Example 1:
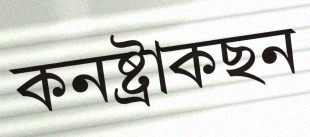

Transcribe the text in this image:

কনষ্ট্ৰাকছন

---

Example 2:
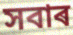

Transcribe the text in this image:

সবাৰ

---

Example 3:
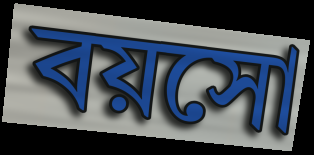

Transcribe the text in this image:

বয়সো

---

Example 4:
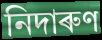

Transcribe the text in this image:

নিদাৰুণ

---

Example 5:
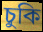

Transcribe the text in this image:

চুকি